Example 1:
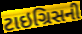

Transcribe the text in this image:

ટાઇગ્રિસની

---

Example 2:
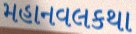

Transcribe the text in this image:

મહાનવલકથા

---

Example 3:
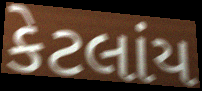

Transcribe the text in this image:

કેટલાંય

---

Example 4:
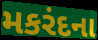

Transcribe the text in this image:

મકરંદના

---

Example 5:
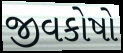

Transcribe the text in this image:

જીવકોષો